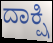
ದಾಕ್ಷಿ